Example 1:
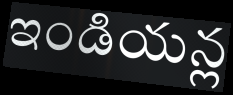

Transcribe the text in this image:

ఇండియన్ల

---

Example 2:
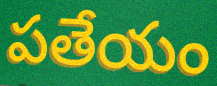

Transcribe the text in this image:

పతేయం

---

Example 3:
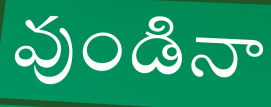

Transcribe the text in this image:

వుండినా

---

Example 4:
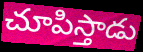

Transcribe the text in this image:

చూపిస్తాడు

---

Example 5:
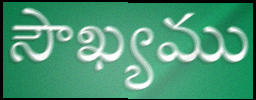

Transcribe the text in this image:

సౌఖ్యము